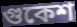
গুকেশ